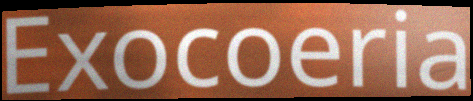
Exocoeria